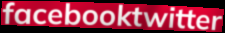
facebooktwitter